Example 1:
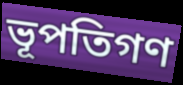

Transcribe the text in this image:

ভূপতিগণ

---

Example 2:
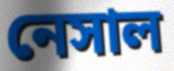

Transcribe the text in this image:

নেসাল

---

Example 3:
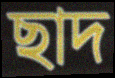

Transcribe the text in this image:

ছাদ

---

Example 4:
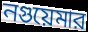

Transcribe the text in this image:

নগুয়েমার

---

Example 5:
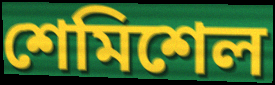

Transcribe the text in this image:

শেমিশেল